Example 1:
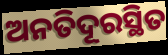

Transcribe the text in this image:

ଅନତିଦୂରସ୍ଥିତ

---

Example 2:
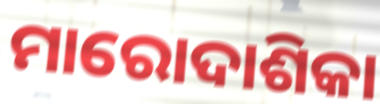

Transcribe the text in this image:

ମାରୋଦାଶିକା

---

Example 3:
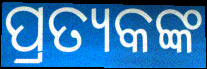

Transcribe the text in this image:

ପ୍ରତ୍ୟକଙ୍କ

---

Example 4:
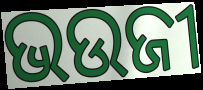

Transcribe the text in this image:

ଭଉଜୀ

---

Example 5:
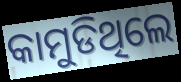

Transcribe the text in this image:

କାମୁଡିଥିଲେ